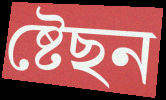
ষ্টেছন